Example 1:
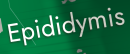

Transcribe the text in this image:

Epididymis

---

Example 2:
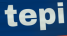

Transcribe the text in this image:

tepi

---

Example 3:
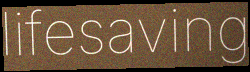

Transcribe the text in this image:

lifesaving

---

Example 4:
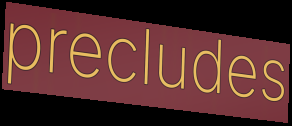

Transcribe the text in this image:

precludes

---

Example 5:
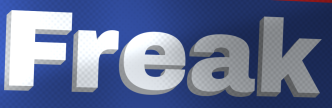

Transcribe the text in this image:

Freak